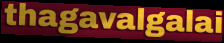
thagavalgalai